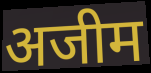
अजीम